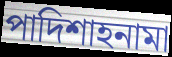
পাদিশাহনামা